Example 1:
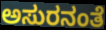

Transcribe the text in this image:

ಅಸುರನಂತೆ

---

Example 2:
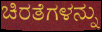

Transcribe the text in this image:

ಚಿರತೆಗಳನ್ನು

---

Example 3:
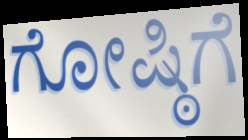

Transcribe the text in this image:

ಗೋಷ್ಠಿಗೆ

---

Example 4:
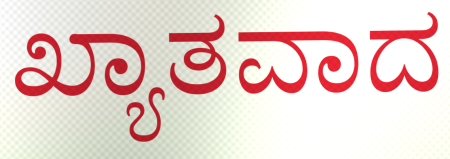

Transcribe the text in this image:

ಖ್ಯಾತವಾದ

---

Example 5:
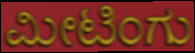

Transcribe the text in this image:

ಮೀಟಿಂಗು